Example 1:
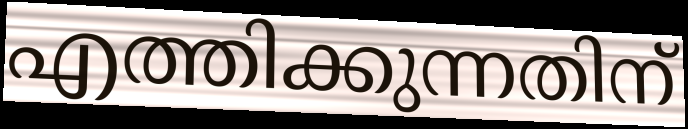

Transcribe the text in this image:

എത്തിക്കുന്നതിന്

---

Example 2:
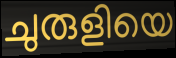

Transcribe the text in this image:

ചുരുളിയെ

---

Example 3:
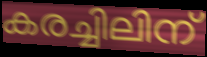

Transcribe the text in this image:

കരച്ചിലിന്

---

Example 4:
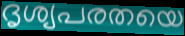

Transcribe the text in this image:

ദൃശ്യപരതയെ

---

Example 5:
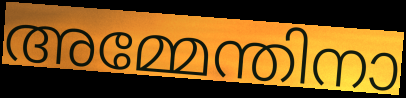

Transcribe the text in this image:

അമ്മേന്തിനാ